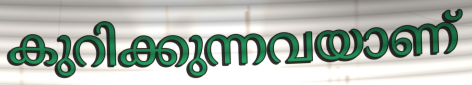
കുറിക്കുന്നവയാണ്